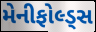
મેનીફોલ્ડ્સ